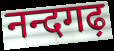
नन्दगढ़